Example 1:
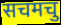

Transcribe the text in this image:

सचमचु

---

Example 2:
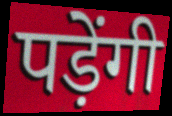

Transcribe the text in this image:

पड़ेंगी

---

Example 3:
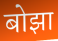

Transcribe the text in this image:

बोझा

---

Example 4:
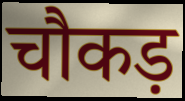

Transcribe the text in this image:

चौकड़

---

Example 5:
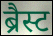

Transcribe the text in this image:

ब्रैस्ट